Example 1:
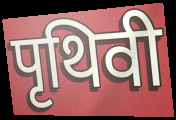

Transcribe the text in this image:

पृथिवी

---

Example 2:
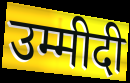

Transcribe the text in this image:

उम्मीदी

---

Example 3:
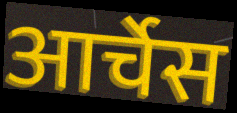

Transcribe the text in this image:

आर्चेस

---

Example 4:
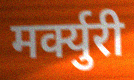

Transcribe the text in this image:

मर्क्युरी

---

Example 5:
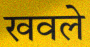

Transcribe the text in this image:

खवले